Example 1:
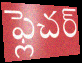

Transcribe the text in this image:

ఫ్లెచర్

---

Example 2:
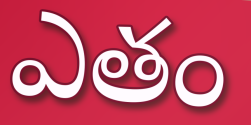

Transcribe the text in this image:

ఎతం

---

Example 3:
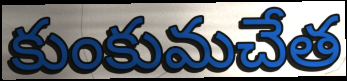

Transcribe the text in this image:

కుంకుమచేత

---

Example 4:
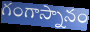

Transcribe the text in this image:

గంగాస్నానం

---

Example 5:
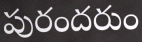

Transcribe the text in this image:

పురందరుం